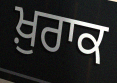
ਖ਼ੁਰਾਕ